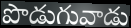
పొడుగువాడు